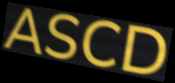
ASCD